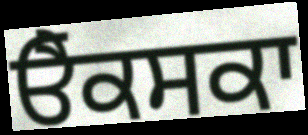
ਓੈਕਸਕਾ